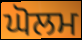
ਘੋਲਮ